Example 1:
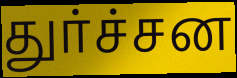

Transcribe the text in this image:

துர்ச்சன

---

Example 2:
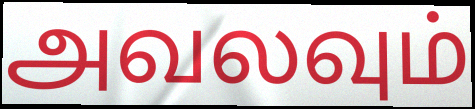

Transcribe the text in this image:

அவலவும்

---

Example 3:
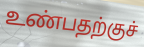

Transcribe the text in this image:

உண்பதற்குச்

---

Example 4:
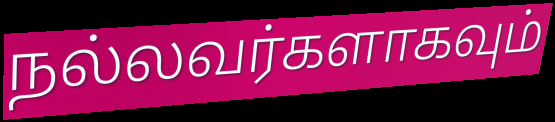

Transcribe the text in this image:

நல்லவர்களாகவும்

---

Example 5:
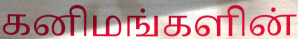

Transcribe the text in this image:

கனிமங்களின்